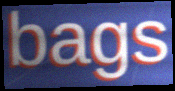
bags